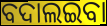
ବଦାଲଇବା